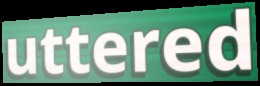
uttered